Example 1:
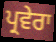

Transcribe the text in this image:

ਪ੍ਰਵੇਰਾ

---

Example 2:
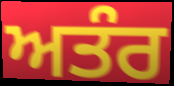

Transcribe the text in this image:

ਅਤੰਰ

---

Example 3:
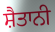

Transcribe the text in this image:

ਸ਼ੈਤਾਨੀ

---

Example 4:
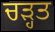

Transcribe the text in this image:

ਚੜ੍ਹਤ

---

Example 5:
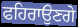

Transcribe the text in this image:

ਫਹਿਰਾਉਣਗੇ